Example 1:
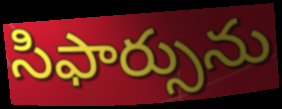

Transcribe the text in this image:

సిఫార్సును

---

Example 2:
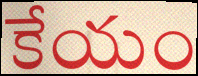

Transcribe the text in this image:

కేయం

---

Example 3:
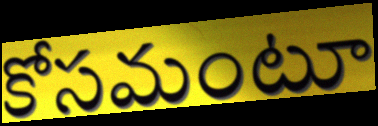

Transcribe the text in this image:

కోసమంటూ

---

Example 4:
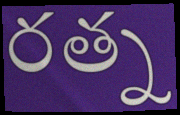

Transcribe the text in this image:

రత్న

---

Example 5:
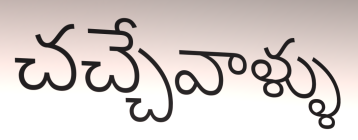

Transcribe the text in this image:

చచ్చేవాళ్ళు